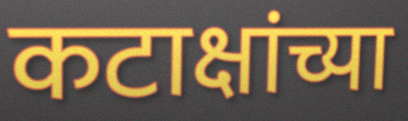
कटाक्षांच्या